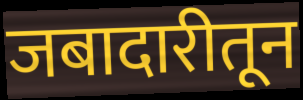
जबादारीतून